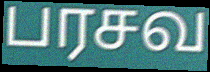
பரசவ